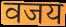
वजय